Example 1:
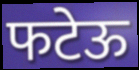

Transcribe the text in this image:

फटेऊ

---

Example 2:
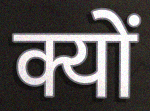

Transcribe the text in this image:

क्यों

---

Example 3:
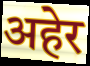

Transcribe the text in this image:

अहेर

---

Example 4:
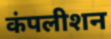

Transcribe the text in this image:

कंपलीशन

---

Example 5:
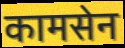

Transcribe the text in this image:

कामसेन